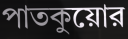
পাতকুয়োর